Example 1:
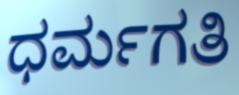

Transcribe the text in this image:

ಧರ್ಮಗತಿ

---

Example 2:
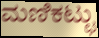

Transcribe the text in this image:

ಮಣಿಕಟ್ಟು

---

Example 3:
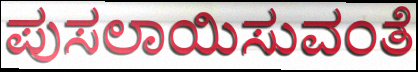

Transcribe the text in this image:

ಪುಸಲಾಯಿಸುವಂತೆ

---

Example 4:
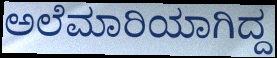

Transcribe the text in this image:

ಅಲೆಮಾರಿಯಾಗಿದ್ದ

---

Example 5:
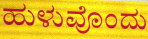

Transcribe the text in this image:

ಹುಳುವೊಂದು